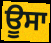
ਊਸਾ